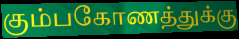
கும்பகோணத்துக்கு